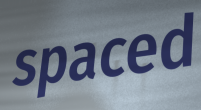
spaced